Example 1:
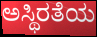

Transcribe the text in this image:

ಅಸ್ಥಿರತೆಯ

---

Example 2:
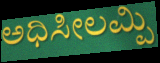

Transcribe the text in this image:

ಅಧಿಸೀಲಮ್ಪಿ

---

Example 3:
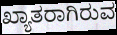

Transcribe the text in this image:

ಖ್ಯಾತರಾಗಿರುವ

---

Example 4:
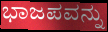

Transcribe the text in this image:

ಭಾಜಪವನ್ನು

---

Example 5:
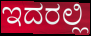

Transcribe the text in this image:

ಇದರಲ್ಲಿ